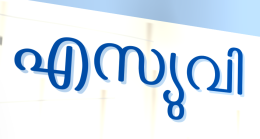
എസ്യുവി